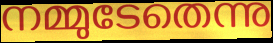
നമ്മുടേതെന്നു